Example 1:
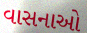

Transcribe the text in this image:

વાસનાઓ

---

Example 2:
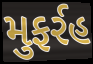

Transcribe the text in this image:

મુફર્રહ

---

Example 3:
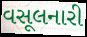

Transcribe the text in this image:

વસૂલનારી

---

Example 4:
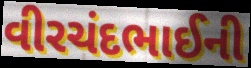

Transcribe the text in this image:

વીરચંદભાઈની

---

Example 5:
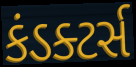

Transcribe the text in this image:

કંડક્ટર્સ